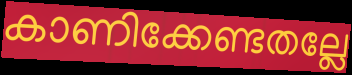
കാണിക്കേണ്ടതല്ലേ